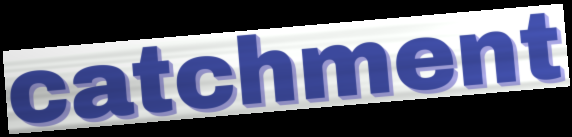
catchment